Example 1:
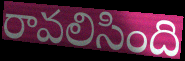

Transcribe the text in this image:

రావలిసింది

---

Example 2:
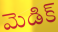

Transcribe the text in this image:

మెడిక్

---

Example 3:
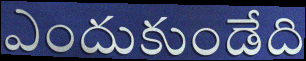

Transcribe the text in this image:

ఎందుకుండేది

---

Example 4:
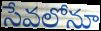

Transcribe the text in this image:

సేవలోనూ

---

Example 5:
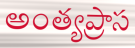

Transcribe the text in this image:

అంత్యప్రాస